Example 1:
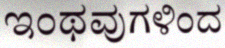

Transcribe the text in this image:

ಇಂಥವುಗಳಿಂದ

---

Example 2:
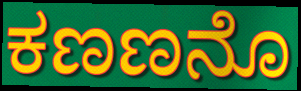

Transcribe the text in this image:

ಕಣಣನೊ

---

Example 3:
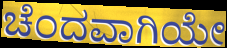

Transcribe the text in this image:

ಚೆಂದವಾಗಿಯೇ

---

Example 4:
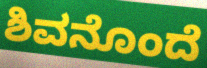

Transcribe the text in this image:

ಶಿವನೊಂದೆ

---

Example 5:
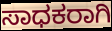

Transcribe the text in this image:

ಸಾಧಕರಾಗಿ